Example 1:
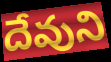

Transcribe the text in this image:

దేవుని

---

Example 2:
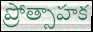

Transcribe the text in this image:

ప్రోత్సాహక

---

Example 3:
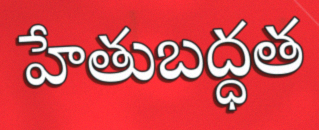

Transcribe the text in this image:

హేతుబద్ధత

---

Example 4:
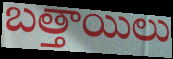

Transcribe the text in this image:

బత్తాయిలు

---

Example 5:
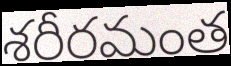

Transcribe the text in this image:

శరీరమంత